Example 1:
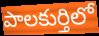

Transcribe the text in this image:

పాలకుర్తిలో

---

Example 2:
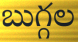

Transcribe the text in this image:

బుగ్గల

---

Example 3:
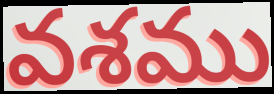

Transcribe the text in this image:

వశము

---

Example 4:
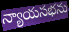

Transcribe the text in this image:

న్యాయసభను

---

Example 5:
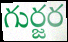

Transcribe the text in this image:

గుర్జర